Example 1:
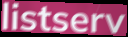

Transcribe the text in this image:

listserv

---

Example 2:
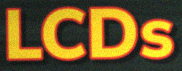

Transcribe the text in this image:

LCDs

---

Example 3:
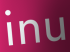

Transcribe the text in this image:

inu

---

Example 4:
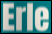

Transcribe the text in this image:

Erle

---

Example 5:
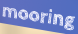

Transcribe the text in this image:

mooring